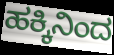
ಹಕ್ಕಿನಿಂದ